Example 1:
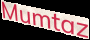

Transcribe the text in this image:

Mumtaz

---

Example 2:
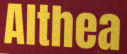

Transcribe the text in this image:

Althea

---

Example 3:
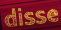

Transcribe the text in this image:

disse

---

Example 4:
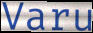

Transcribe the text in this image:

Varu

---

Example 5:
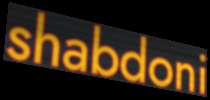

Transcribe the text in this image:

shabdoni